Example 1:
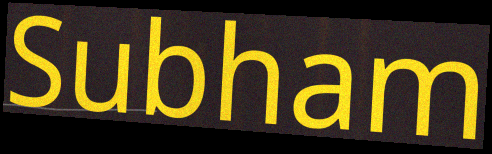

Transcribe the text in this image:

Subham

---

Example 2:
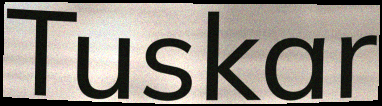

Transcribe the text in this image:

Tuskar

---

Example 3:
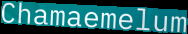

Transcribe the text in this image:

Chamaemelum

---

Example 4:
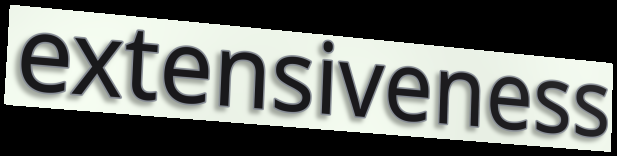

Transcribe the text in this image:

extensiveness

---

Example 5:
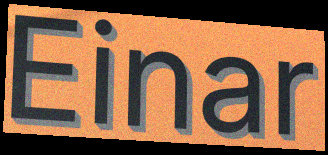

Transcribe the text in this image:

Einar